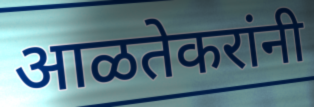
आळतेकरांनी